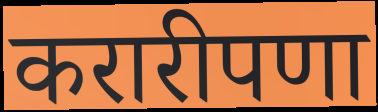
करारीपणा